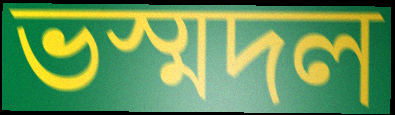
ভস্মদল